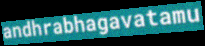
andhrabhagavatamu